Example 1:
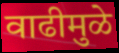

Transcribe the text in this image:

वाढीमुळे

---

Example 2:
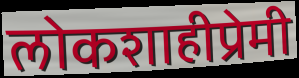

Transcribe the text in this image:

लोकशाहीप्रेमी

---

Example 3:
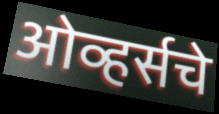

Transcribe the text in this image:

ओव्हर्सचे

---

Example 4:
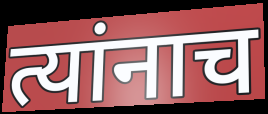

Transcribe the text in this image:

त्यांनाच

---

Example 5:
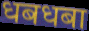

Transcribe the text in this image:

धबधबा